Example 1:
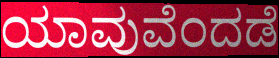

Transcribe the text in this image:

ಯಾವುವೆಂದಡೆ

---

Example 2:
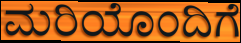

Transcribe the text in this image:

ಮರಿಯೊಂದಿಗೆ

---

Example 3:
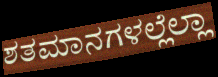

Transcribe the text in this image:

ಶತಮಾನಗಳಲ್ಲೆಲ್ಲಾ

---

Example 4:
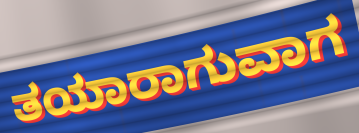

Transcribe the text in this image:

ತಯಾರಾಗುವಾಗ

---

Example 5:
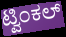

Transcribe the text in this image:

ಟ್ವಿಂಕಲ್